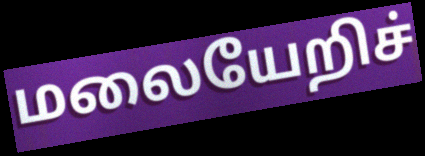
மலையேறிச்